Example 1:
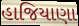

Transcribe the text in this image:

હાજિયાણા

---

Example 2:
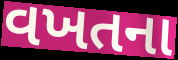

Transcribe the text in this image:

વખતના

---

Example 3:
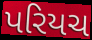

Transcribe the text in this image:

પરિયચ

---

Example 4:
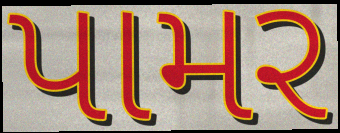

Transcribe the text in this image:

પામર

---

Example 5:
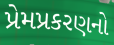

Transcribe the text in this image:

પ્રેમપ્રકરણનો